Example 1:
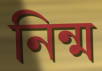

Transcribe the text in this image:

নিন্ম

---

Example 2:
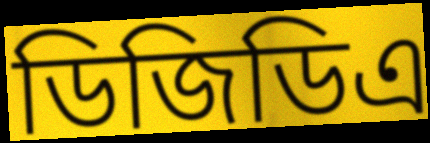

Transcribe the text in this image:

ডিজিডিএ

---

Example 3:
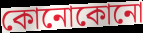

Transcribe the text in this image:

কোনোকোনো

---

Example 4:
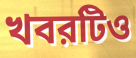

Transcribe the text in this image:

খবরটিও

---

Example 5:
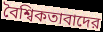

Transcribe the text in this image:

বৈশ্বিকতাবাদের